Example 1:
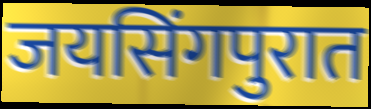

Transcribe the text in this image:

जयसिंगपुरात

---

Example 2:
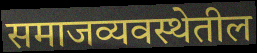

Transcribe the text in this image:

समाजव्यवस्थेतील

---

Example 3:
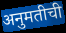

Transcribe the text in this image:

अनुमतीची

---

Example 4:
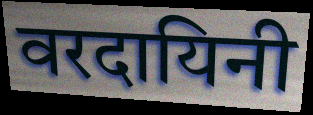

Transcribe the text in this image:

वरदायिनी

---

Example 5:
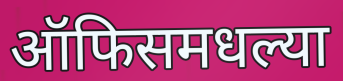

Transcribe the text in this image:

ऑफिसमधल्या